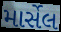
માર્સેલ